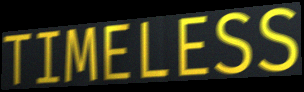
TIMELESS